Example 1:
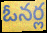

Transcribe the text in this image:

ఓనర్ల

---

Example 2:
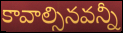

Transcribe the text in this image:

కావాల్సినవన్నీ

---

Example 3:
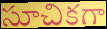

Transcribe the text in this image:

సూచికగా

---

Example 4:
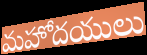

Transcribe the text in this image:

మహోదయులు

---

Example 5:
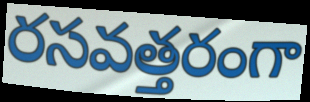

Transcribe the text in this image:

రసవత్తరంగా